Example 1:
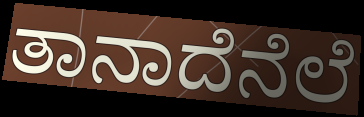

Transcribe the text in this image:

ತಾನಾದೆನೆಲೆ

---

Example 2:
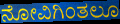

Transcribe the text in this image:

ನೋವಿಗಿಂತಲೂ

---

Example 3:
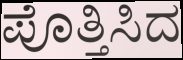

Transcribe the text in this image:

ಪೊತ್ತಿಸಿದ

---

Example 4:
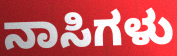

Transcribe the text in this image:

ನಾಸಿಗಳು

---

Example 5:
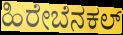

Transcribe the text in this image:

ಹಿರೇಬೆನಕಲ್